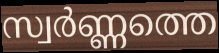
സ്വർണ്ണത്തെ